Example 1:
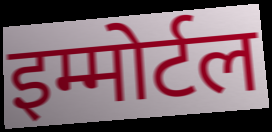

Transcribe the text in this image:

इम्मोर्टल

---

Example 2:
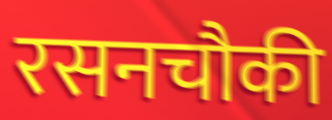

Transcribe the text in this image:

रसनचौकी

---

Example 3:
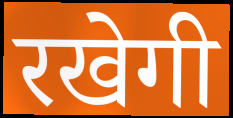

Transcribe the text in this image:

रखेगी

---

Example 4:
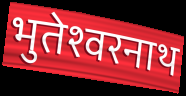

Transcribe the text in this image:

भुतेश्वरनाथ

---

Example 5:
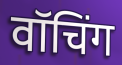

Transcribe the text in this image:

वॉचिंग